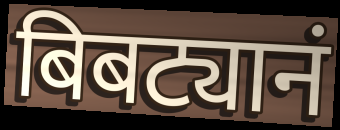
बिबट्यानं